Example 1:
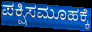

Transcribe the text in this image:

ಪಕ್ಷಿಸಮೂಹಕ್ಕೆ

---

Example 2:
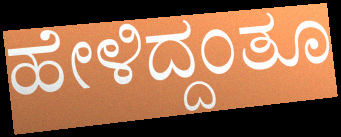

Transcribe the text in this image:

ಹೇಳಿದ್ದಂತೂ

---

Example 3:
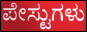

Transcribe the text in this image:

ಪೇಸ್ಟುಗಳು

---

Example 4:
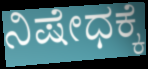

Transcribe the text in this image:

ನಿಷೇಧಕ್ಕೆ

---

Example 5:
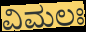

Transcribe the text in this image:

ವಿಮಲಃ